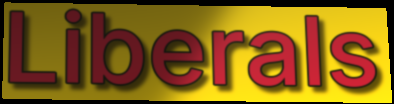
Liberals